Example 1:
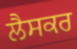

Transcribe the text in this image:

ਲੈਸਕਰ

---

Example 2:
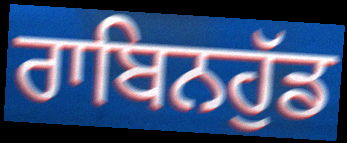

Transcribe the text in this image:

ਰਾਬਿਨਹੁੱਡ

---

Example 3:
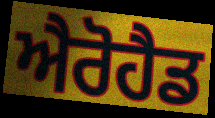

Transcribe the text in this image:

ਐਰੋਹੈਡ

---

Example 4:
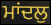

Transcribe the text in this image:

ਮਾਂਦਲੁ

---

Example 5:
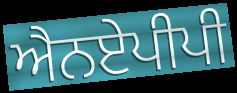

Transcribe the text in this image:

ਐਨਏਪੀਪੀ